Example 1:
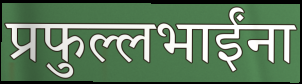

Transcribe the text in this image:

प्रफुल्लभाईंना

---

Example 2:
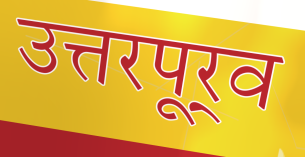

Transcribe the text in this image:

उत्तरपूर्व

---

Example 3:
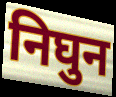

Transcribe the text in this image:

निघुन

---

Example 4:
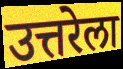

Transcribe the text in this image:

उत्तरेला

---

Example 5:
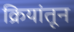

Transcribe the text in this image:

क्रियांतून